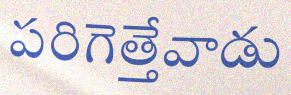
పరిగెత్తేవాడు